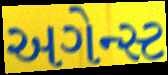
અગેન્સ્ટ